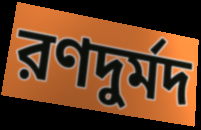
রণদুর্মদ